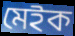
মেইক